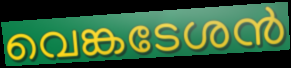
വെങ്കടേശൻ